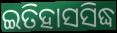
ଇତିହାସସିଦ୍ଧ